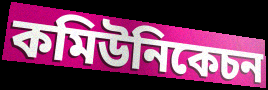
কমিউনিকেচন